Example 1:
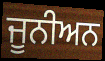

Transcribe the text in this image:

ਜੂਨੀਅਨ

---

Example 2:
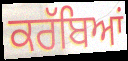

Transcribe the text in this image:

ਕਰੱਬਿਆਂ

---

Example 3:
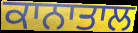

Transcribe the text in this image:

ਕਾਨਾਤਾਲ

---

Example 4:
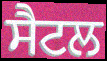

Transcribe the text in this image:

ਸੈਟਲ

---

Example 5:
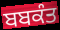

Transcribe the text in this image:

ਬਬਕੰਤ